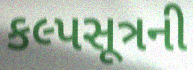
કલ્પસૂત્રની